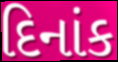
દિનાંક